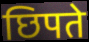
छिपते